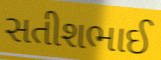
સતીશભાઈ